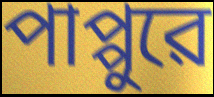
পাপ্পুৱে